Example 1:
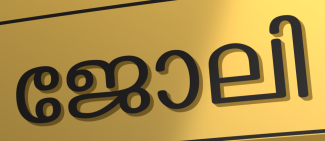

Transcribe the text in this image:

ജോലി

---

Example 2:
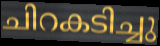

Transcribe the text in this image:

ചിറകടിച്ചു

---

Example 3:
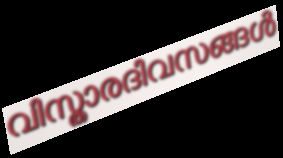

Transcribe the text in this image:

വിസ്താരദിവസങ്ങൾ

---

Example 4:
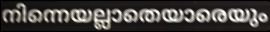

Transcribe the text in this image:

നിന്നെയല്ലാതെയാരെയും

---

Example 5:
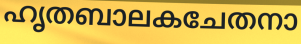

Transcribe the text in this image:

ഹൃതബാലകചേതനാ